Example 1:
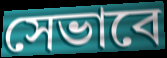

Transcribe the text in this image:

সেভাবে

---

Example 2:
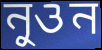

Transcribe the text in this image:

নুওন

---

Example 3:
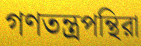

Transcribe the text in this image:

গণতন্ত্রপন্থিরা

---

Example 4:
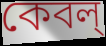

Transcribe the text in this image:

কেবল্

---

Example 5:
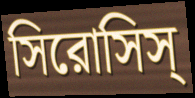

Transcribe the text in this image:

সিরোসিস্